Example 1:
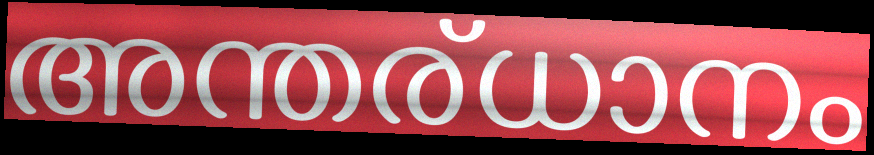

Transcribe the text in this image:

അന്തര്ധാനം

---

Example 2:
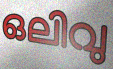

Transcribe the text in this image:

ഒലിവു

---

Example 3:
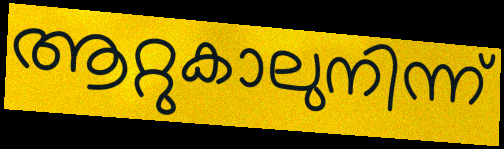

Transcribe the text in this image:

ആറ്റുകാലുനിന്ന്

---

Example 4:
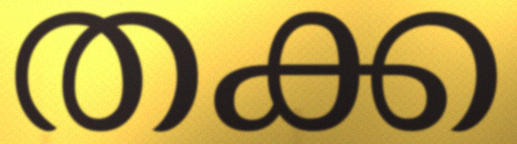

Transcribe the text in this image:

തക്ക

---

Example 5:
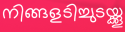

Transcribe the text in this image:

നിങ്ങളടിച്ചുടയ്ക്കൂ